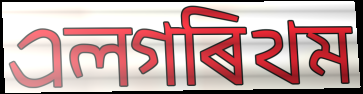
এলগৰিথম